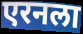
एरनला